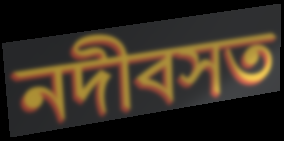
নদীবসত